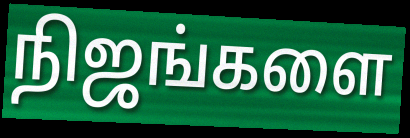
நிஜங்களை